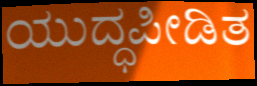
ಯುದ್ಧಪೀಡಿತ